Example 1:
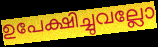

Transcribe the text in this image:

ഉപേക്ഷിച്ചുവല്ലോ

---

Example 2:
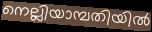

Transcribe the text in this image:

നെല്ലിയാമ്പതിയിൽ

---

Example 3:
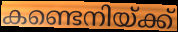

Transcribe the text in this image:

കണ്ടെനിയ്ക്ക്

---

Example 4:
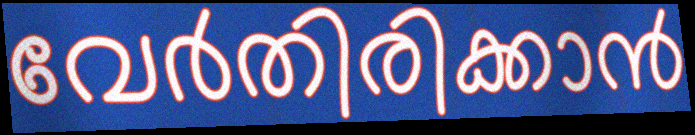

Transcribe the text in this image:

വേർതിരിക്കാൻ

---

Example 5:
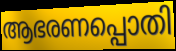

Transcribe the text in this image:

ആഭരണപ്പൊതി